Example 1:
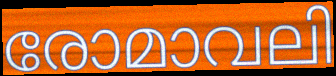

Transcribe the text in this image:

രോമാവലി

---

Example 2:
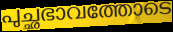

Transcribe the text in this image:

പുച്ഛഭാവത്തോടെ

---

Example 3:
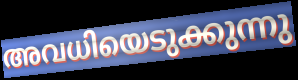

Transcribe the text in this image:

അവധിയെടുക്കുന്നു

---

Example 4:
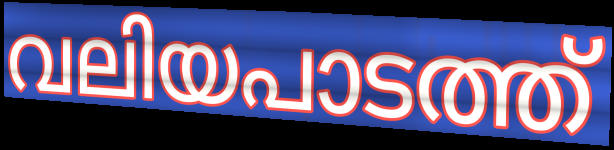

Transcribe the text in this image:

വലിയപാടത്ത്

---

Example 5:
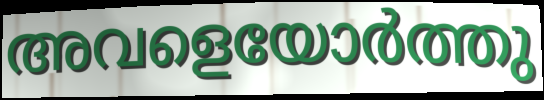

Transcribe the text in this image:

അവളെയോർത്തു